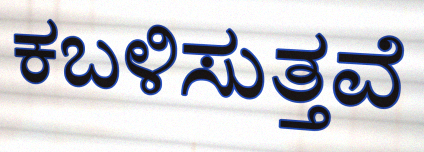
ಕಬಳಿಸುತ್ತವೆ